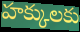
హక్కులకు